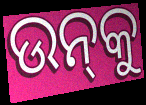
ଉନ୍‌କୁ